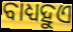
ବାଧ୍ୟହୁଏ